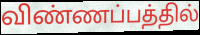
விண்ணப்பத்தில்